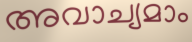
അവാച്യമാം